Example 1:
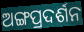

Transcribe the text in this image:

ଅଙ୍ଗପ୍ରଦର୍ଶନ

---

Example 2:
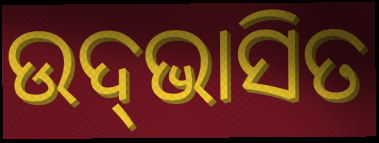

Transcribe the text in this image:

ଉଦ୍‌ଭାସିତ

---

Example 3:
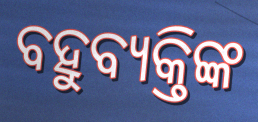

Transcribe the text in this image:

ବହୁବ୍ୟକ୍ତିଙ୍କ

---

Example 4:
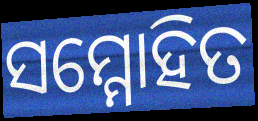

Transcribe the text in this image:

ସମ୍ମୋହିତ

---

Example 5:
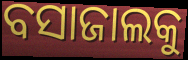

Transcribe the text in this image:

ବସାଜାଲକୁ